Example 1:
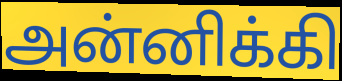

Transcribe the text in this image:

அன்னிக்கி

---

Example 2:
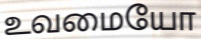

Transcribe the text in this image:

உவமையோ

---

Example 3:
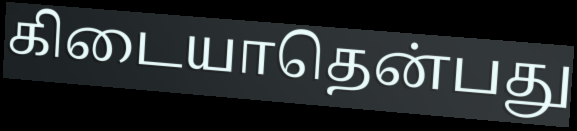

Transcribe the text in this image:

கிடையாதென்பது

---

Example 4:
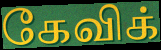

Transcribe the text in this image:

கேவிக்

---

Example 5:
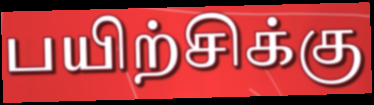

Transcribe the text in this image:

பயிற்சிக்கு